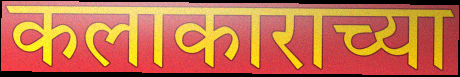
कलाकाराच्या